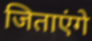
जिताएंगे